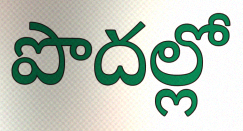
పొదల్లో